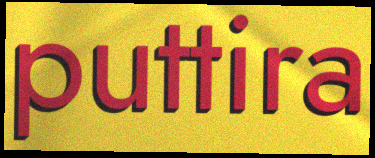
puttira